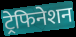
ट्रेफिनेशन